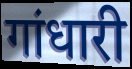
गांधारी